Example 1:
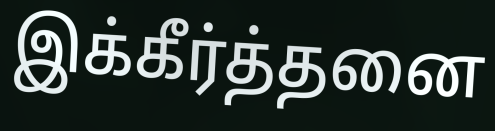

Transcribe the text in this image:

இக்கீர்த்தனை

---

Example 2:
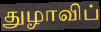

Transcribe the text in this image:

துழாவிப்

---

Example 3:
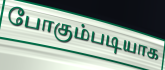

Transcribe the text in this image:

போகும்படியாக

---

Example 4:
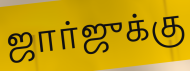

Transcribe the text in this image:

ஜார்ஜுக்கு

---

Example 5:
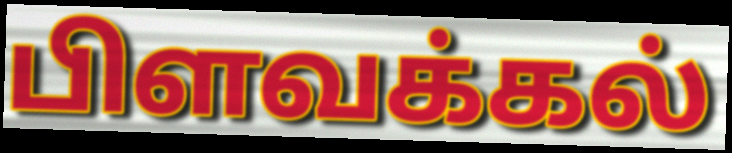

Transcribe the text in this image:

பிளவக்கல்